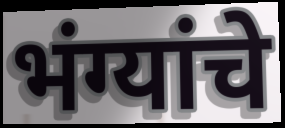
भंग्यांचे